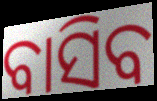
ବାସିବ